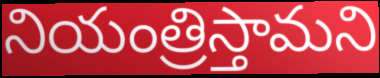
నియంత్రిస్తామని